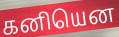
கனியென